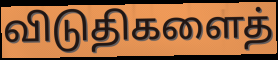
விடுதிகளைத்